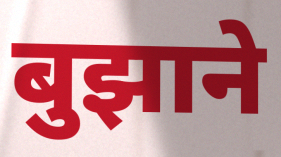
बुझाने